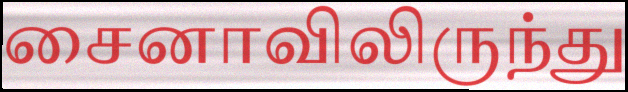
சைனாவிலிருந்து